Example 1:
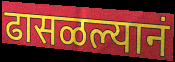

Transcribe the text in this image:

ढासळल्यानं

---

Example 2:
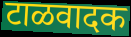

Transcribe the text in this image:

टाळवादक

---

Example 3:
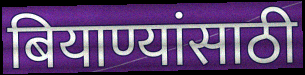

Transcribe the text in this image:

बियाण्यांसाठी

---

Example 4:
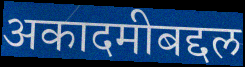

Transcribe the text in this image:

अकादमीबद्दल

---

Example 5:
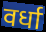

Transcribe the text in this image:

वर्धा